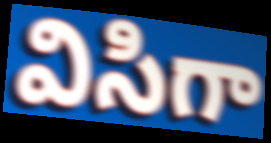
విసిగా